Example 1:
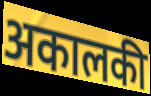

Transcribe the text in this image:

अकालकी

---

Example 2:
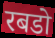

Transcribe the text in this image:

रबडो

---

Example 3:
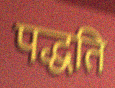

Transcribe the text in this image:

पद्धति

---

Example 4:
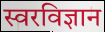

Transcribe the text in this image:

स्वरविज्ञान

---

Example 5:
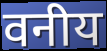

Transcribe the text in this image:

वनीय